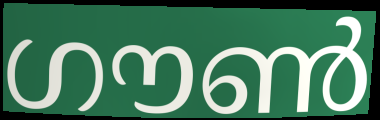
ഗൗൺ